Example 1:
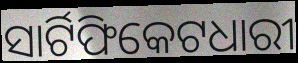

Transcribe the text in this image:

ସାର୍ଟିଫିକେଟଧାରୀ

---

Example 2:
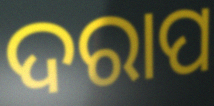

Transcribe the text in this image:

ଦରାପ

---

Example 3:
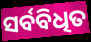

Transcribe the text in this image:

ସର୍ବବିଧିତ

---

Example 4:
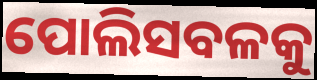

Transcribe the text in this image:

ପୋଲିସବଳକୁ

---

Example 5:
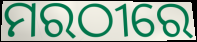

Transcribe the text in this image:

ମରଠୀରେ